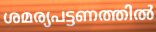
ശമര്യപട്ടണത്തിൽ